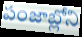
పంజాబ్లోని